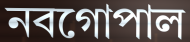
নবগোপাল